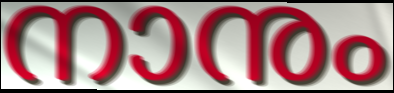
നാനും